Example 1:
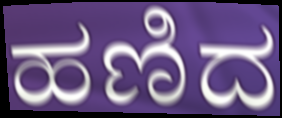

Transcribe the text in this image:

ಹಣಿದ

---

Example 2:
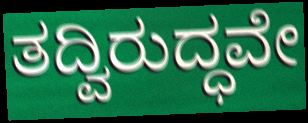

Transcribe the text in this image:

ತದ್ವಿರುದ್ಧವೇ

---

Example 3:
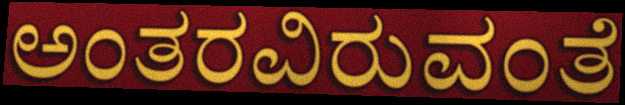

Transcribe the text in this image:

ಅಂತರವಿರುವಂತೆ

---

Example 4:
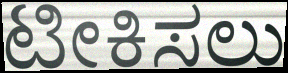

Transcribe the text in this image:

ಟೀಕಿಸಲು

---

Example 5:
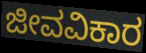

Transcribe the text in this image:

ಜೀವವಿಕಾರ